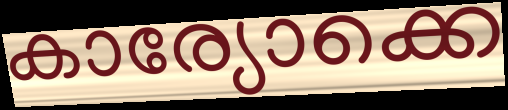
കാര്യോക്കെ